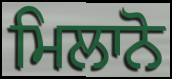
ਮਿਲਾਨੋ